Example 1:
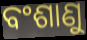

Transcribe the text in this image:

ବଂଶାଣୁ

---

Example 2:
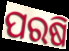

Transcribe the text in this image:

ପରଷି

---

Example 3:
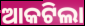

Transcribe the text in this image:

ଆକଟିଲା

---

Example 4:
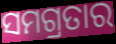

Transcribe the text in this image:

ସମଗ୍ରତାର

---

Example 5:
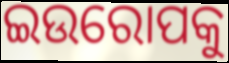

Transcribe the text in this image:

ଇଉରୋପକୁ